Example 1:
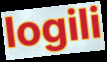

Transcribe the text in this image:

logili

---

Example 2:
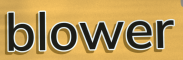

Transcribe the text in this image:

blower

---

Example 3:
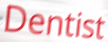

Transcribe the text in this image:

Dentist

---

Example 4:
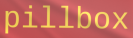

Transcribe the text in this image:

pillbox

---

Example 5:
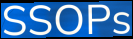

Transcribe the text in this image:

SSOPs